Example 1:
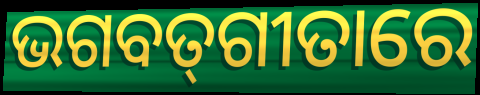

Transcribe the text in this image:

ଭଗବତ୍‌ଗୀତାରେ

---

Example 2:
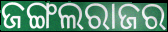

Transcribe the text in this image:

ଜଙ୍ଗଲରାଜର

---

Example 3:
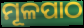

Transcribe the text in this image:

ମୂଳପାଠ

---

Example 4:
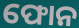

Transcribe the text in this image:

ଫୋନ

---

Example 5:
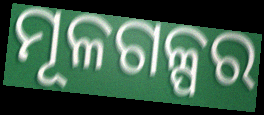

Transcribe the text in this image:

ମୂଳଗଳ୍ପର